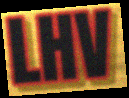
LHV